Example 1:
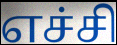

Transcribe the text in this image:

எச்சி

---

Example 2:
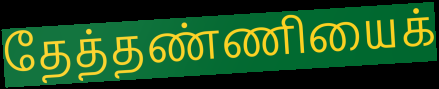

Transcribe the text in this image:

தேத்தண்ணியைக்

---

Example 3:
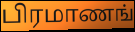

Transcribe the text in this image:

பிரமாணங்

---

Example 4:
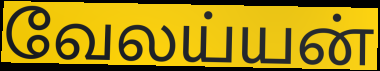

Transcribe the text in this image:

வேலய்யன்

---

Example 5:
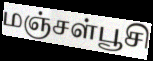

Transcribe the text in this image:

மஞ்சள்பூசி